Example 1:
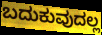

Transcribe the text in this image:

ಬದುಕುವುದಲ್ಲ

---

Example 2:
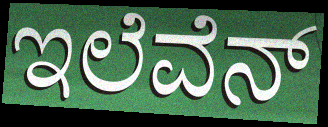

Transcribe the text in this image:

ಇಲೆವೆನ್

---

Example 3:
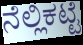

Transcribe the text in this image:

ನೆಲ್ಲಿಕಟ್ಟೆ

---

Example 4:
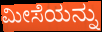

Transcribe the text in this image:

ಮೀಸೆಯನ್ನು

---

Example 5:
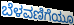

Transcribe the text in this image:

ಬೆಳವಣಿಗೆಯೂ